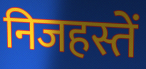
निजहस्तें